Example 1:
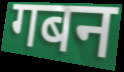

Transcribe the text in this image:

गबन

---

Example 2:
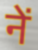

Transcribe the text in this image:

नें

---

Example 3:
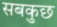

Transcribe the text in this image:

सबकुछ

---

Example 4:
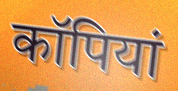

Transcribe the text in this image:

कॉपियां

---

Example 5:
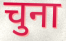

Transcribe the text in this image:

चुना